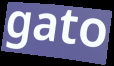
gato